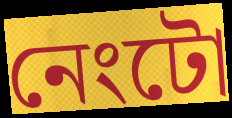
নেংটো